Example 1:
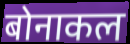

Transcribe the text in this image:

बोनाकल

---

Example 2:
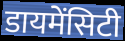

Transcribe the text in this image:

डायमेंसिटी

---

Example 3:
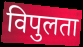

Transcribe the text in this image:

विपुलता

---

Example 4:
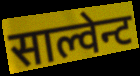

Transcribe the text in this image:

साल्वेन्ट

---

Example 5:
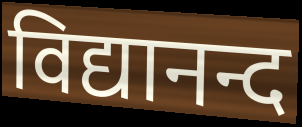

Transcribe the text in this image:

विद्यानन्द